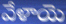
వేళాయె